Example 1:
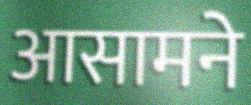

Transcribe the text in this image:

आसामने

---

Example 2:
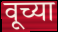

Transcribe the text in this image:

वूच्या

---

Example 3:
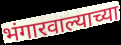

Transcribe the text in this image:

भंगारवाल्याच्या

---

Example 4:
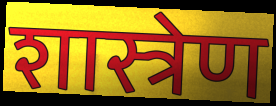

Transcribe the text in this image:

शास्त्रेण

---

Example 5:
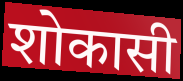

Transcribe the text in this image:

शोकासी